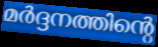
മർദ്ദനത്തിന്റെ